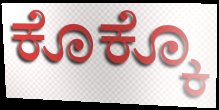
ಕೊಕ್ಕೊ